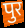
पुर